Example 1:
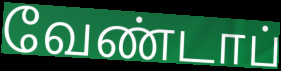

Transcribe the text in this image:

வேண்டாப்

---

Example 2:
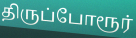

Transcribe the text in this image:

திருப்போரூர்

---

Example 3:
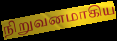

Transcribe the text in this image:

நிறுவனமாகிய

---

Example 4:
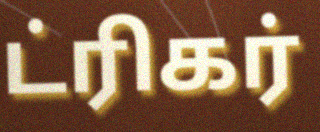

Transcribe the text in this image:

ட்ரிகர்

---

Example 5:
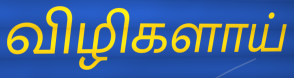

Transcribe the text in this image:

விழிகளாய்